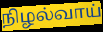
நிழல்வாய்